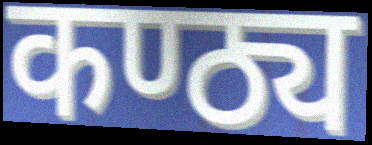
कण्ठ्य